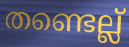
തണ്ടെല്ല്